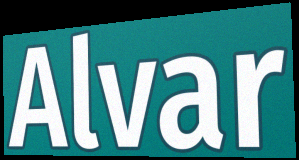
Alvar